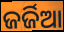
ଜର୍ଜିଆ